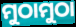
ମୁଠାମୁଠା